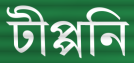
টীপ্পনি